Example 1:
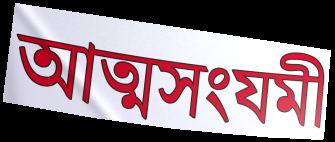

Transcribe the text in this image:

আত্মসংযমী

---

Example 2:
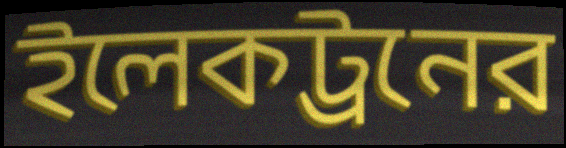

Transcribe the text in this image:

ইলেকট্রনের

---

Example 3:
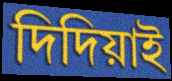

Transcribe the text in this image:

দিদিয়াই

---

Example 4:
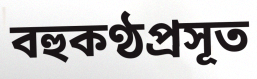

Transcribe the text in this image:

বহুকণ্ঠপ্রসূত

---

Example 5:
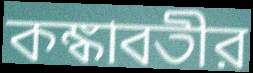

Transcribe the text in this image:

কঙ্কাবতীর